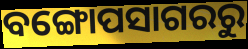
ବଙ୍ଗୋପସାଗରରୁ